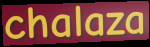
chalaza